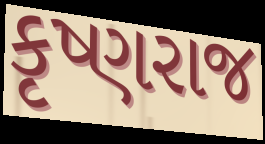
કૃષ્ણરાજ